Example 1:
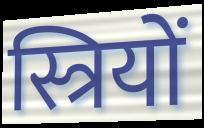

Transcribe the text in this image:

स्त्रियों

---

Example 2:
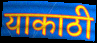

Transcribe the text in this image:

याकाठी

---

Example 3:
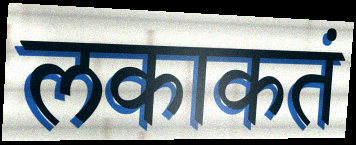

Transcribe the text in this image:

लकाकतं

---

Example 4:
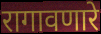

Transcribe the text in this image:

रागावणारे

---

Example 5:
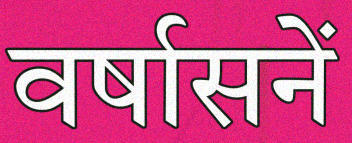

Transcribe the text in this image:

वर्षासनें